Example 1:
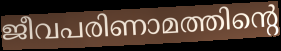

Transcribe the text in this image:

ജീവപരിണാമത്തിന്റെ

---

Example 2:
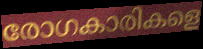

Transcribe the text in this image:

രോഗകാരികളെ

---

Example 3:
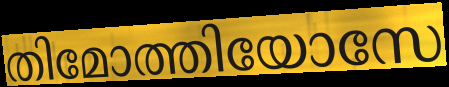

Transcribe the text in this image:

തിമോത്തിയോസേ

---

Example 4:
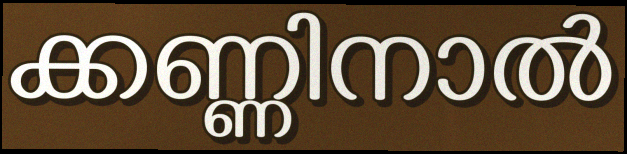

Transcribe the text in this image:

ക്കണ്ണിനാൽ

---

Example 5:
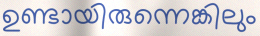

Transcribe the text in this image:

ഉണ്ടായിരുന്നെങ്കിലും